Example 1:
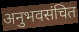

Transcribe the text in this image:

अनुभवसंचित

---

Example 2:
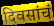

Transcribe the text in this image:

दिवसांचं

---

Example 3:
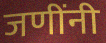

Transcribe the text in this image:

जणींनी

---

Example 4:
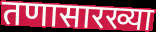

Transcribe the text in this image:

तणासारख्या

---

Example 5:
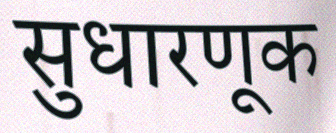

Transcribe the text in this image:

सुधारणूक